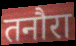
तनौरा